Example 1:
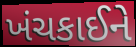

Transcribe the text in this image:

ખંચકાઈને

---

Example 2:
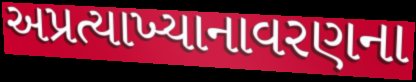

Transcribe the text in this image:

અપ્રત્યાખ્યાનાવરણના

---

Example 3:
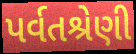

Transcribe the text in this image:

પર્વતશ્રેણી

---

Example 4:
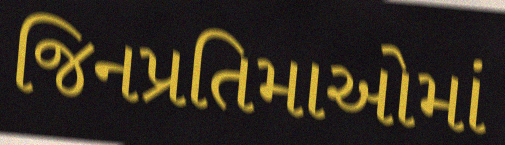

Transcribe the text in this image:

જિનપ્રતિમાઓમાં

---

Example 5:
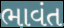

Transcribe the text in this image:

ભાવંત